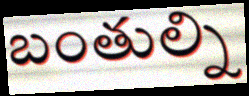
బంతుల్ని